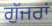
ਗੁੱਜਰਾਂ